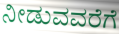
ನೀಡುವವರೆಗೆ